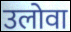
उलोवा